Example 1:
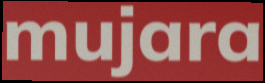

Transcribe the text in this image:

mujara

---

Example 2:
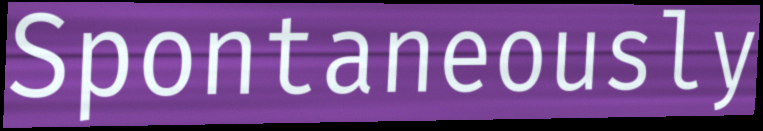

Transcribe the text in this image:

Spontaneously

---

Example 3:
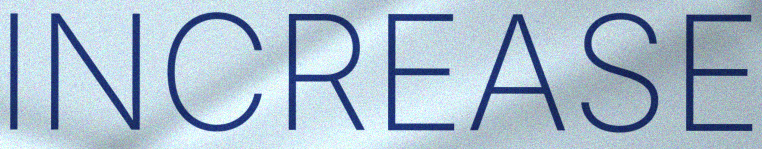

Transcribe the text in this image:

INCREASE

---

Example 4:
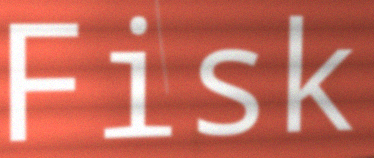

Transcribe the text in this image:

Fisk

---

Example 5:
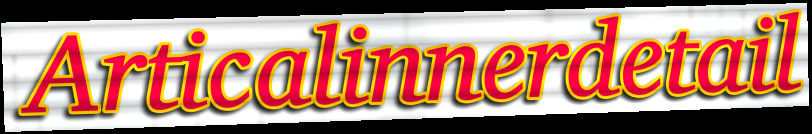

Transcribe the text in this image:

Articalinnerdetail